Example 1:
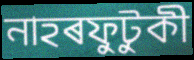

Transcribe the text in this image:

নাহৰফুটুকী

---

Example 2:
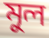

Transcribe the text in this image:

মুল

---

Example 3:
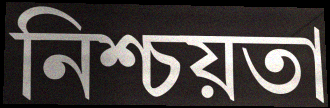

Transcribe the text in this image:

নিশ্চয়তা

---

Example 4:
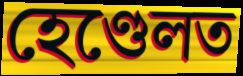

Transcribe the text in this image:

হেণ্ডেলত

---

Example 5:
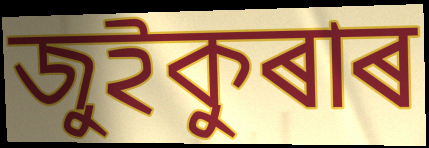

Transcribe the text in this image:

জুইকুৰাৰ